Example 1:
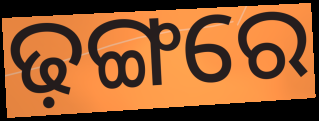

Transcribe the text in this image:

ଢ଼ଙ୍ଗରେ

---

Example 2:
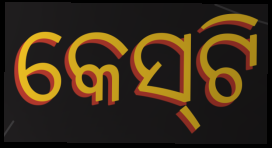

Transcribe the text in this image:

କେସ୍‌ଟି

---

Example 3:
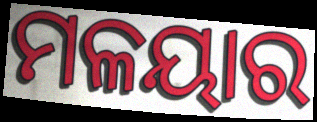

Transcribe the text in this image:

ମଳୟାର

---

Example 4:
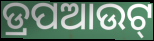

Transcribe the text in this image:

ଡ୍ରପଆଉଟ୍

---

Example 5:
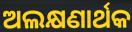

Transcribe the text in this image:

ଅଲକ୍ଷଣାର୍ଥକ